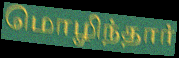
மொழிந்தார்